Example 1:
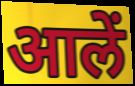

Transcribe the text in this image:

आलें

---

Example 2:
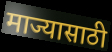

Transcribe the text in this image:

माज्यासाठी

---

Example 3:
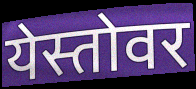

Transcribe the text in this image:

येस्तोवर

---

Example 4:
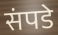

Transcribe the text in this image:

संपडे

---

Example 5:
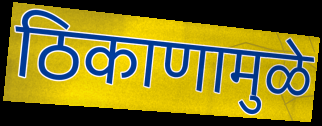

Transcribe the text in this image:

ठिकाणामुळे